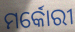
ମର୍କୋରୀ